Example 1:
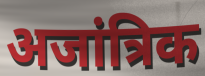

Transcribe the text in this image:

अजांत्रिक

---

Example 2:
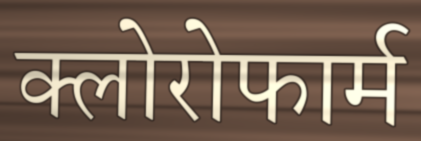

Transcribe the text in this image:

क्लोरोफार्म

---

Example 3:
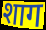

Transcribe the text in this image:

शाग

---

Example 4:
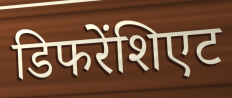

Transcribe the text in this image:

डिफरेंशिएट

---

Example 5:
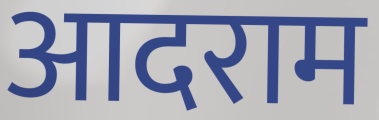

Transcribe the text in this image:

आदराम